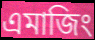
এমাজিং